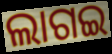
ଲାଗଇ